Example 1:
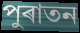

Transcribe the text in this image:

পুৰাতন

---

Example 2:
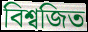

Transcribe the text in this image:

বিশ্বজিত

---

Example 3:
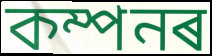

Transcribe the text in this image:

কম্পনৰ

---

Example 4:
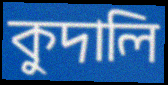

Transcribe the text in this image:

কুদালি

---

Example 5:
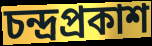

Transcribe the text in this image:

চন্দ্ৰপ্ৰকাশ